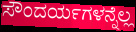
ಸೌಂದರ್ಯಗಳನ್ನೆಲ್ಲ